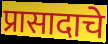
प्रासादाचे